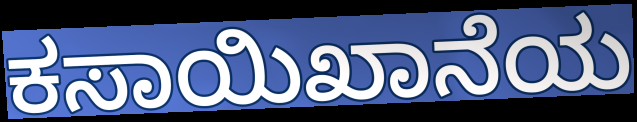
ಕಸಾಯಿಖಾನೆಯ